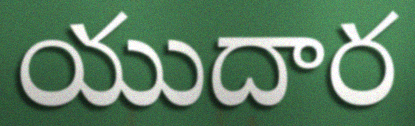
యుదార